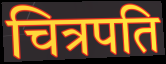
चित्रपति